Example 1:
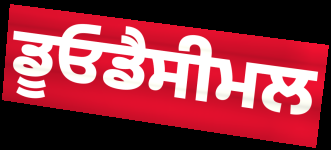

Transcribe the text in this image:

ਡੂਓਡੈਸੀਮਲ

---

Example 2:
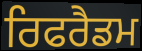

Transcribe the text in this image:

ਰਿਫਰੈਡਮ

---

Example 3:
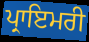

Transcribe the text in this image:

ਪ੍ਰਾਇਮਰੀ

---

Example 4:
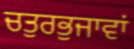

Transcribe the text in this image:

ਚਤੁਰਭੁਜਾਵਾਂ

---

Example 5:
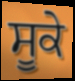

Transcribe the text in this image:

ਸੂਕੇ